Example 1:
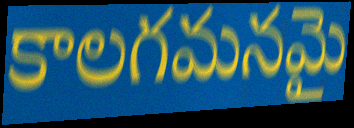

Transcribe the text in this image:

కాలగమనమై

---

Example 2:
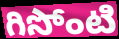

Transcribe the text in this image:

గిసోంటి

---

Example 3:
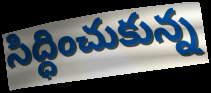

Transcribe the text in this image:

సిద్ధించుకున్న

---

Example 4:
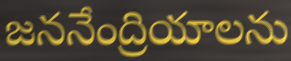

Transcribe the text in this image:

జననేంద్రియాలను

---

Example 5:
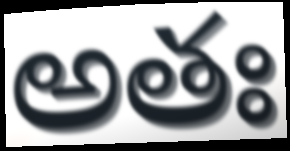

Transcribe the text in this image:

అతః